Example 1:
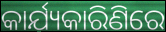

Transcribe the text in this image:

କାର୍ଯ୍ୟକାରିଣିରେ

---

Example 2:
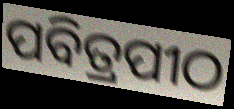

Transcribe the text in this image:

ପବିତ୍ରପୀଠ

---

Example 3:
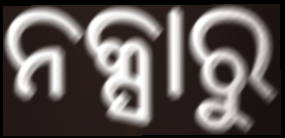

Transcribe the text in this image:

ନକ୍ସାରୁ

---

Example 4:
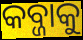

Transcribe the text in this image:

କବ୍ଜାକୁ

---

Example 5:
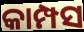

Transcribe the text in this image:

କାମ୍ପସ